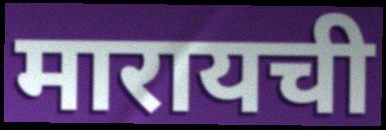
मारायची